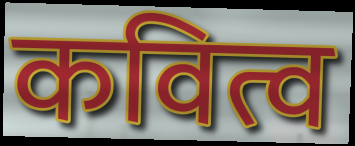
कवित्व